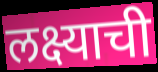
लक्ष्याची